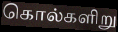
கொல்களிறு